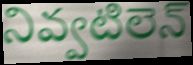
నివ్వటిలెన్